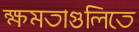
ক্ষমতাগুলিতে